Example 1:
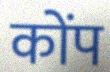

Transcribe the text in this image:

कोंप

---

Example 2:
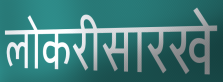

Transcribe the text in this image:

लोकरीसारखे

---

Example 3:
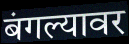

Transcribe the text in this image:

बंगल्यावर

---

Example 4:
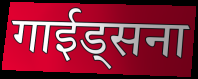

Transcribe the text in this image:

गाईड्सना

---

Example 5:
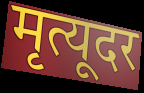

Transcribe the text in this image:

मृत्यूदर